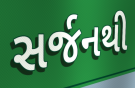
સર્જનથી